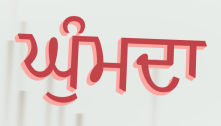
ਘੁੰਮਦਾ